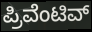
ಪ್ರಿವೆಂಟಿವ್